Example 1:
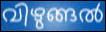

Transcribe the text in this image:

വിഴുങ്ങൽ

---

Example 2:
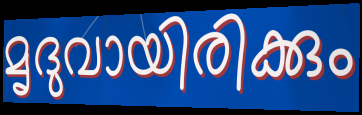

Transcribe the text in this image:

മൃദുവായിരിക്കും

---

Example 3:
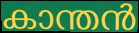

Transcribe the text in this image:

കാന്തൻ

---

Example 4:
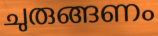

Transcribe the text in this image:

ചുരുങ്ങണം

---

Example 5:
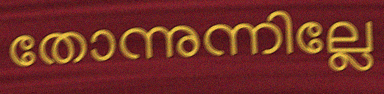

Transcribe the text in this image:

തോന്നുന്നില്ലേ